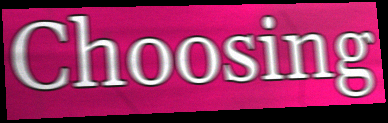
Choosing